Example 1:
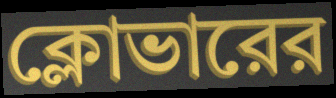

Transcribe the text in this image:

ক্লোভারের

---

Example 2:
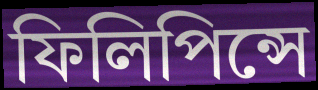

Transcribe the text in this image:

ফিলিপিন্সে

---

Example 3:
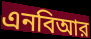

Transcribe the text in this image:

এনবিআর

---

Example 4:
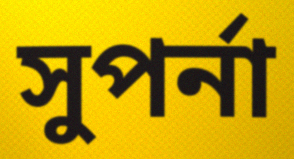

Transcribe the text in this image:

সুপর্না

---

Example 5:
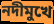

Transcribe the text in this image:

নদীমুখে